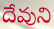
దేవుని